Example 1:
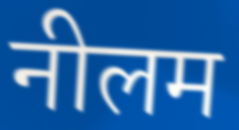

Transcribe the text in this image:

नीलम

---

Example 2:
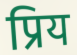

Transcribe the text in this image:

प्रिय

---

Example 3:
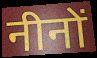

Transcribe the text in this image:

नीनों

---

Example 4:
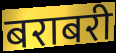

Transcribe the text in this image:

बराबरी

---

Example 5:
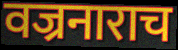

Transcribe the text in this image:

वज्रनाराच